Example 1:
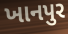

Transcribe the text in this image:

ખાનપુર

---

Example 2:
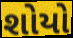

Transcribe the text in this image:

શોયો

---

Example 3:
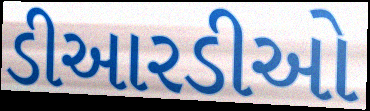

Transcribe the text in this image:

ડીઆરડીઓ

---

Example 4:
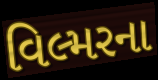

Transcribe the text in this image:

વિલ્મરના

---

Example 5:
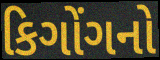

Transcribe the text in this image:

કિગોંગનો